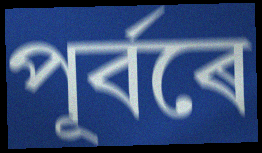
পূৰ্বৰে